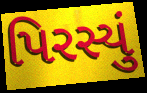
પિરસ્યું